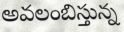
అవలంబిస్తున్న